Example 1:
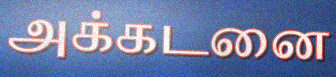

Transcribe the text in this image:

அக்கடனை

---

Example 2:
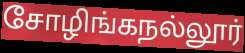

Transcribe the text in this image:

சோழிங்கநல்லூர்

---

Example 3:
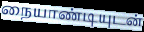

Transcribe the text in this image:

நையாண்டியுடன்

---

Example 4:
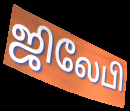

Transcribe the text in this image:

ஜிலேபி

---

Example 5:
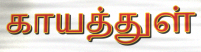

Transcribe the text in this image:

காயத்துள்